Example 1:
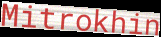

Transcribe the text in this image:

Mitrokhin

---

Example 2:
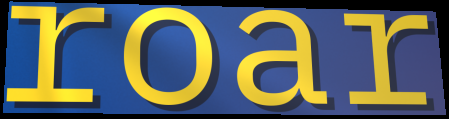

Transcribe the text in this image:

roar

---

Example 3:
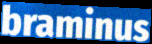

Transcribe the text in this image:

braminus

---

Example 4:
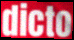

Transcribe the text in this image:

dicto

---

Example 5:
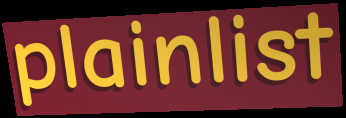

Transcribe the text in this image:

plainlist